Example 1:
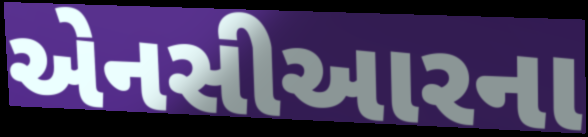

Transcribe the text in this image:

એનસીઆરના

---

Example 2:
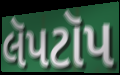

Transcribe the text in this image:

લૅપટૉપ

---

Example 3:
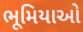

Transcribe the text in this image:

ભૂમિયાઓ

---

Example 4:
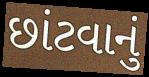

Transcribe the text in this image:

છાંટવાનું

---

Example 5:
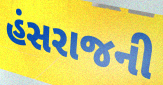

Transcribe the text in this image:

હંસરાજની